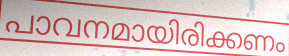
പാവനമായിരിക്കണം